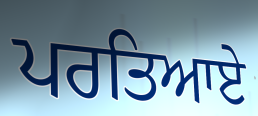
ਪਰਤਿਆਏ